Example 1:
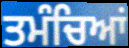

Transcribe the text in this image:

ਤਮੰਚਿਆਂ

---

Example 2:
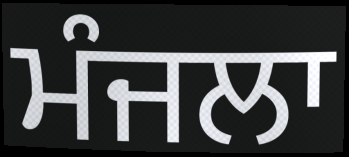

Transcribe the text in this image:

ਮੰਜਲਾ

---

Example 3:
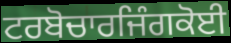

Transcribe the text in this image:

ਟਰਬੋਚਾਰਜਿੰਗਕੋਈ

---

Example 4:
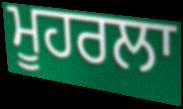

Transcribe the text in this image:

ਮੂਹਰਲਾ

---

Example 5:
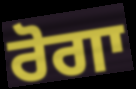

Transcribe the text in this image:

ਰੋਗਾ